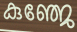
കുഞ്ജേ